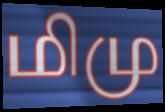
மிமு